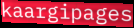
kaargipages